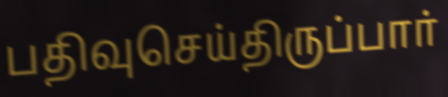
பதிவுசெய்திருப்பார்